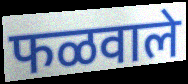
फळवाले